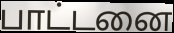
பாட்டனை